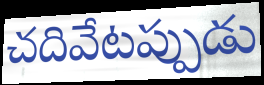
చదివేటప్పుడు